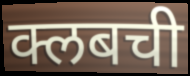
क्लबची